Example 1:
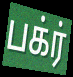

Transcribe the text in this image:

பக்ர்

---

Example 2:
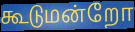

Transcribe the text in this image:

கூடுமன்றோ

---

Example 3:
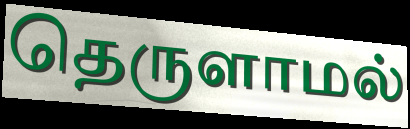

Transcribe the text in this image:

தெருளாமல்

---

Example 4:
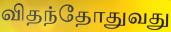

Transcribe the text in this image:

விதந்தோதுவது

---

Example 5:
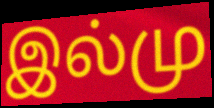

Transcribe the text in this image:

இல்மு